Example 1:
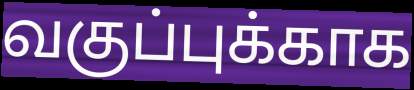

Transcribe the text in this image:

வகுப்புக்காக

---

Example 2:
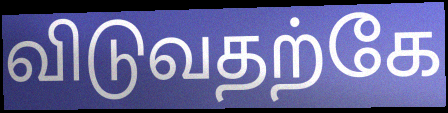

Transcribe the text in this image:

விடுவதற்கே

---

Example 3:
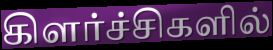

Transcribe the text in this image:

கிளர்ச்சிகளில்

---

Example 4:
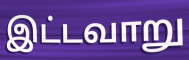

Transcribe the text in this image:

இட்டவாறு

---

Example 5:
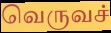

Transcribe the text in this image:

வெருவச்